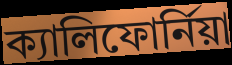
ক্যালিফোর্নিয়া